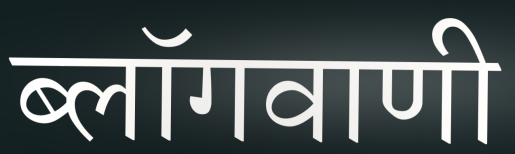
ब्लॉगवाणी